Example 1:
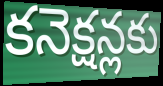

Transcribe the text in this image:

కనెక్షన్లకు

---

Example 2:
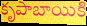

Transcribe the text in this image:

కృపాబాయికి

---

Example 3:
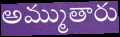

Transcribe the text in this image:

అమ్ముతారు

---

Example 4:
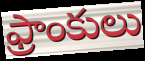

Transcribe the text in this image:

ఫ్రాంకులు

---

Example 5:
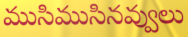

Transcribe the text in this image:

ముసిముసినవ్వులు